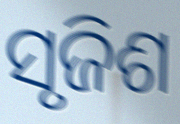
ସୃଜିଶ